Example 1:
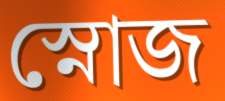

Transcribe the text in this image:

স্নোজ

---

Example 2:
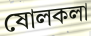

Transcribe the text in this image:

ষোলকলা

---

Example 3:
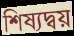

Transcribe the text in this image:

শিষ্যদ্বয়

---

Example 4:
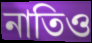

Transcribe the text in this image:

নাতিও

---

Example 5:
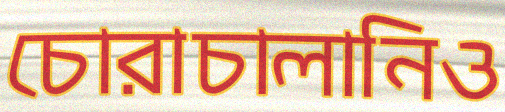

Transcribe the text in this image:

চোরাচালানিও